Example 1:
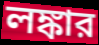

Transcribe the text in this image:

লঙ্কার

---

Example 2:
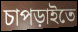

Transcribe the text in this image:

চাপড়াইতে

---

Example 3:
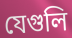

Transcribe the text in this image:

যেগুলি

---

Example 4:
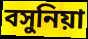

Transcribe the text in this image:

বসুনিয়া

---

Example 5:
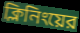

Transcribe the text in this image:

ক্লিনিংয়ের